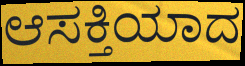
ಆಸಕ್ತಿಯಾದ